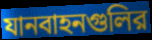
যানবাহনগুলির